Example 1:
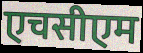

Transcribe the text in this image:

एचसीएम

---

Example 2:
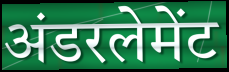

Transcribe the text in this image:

अंडरलेमेंट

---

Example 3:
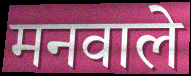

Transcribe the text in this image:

मनवाले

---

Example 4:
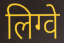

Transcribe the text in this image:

लिग्वे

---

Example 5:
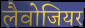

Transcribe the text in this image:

लैवोजियर